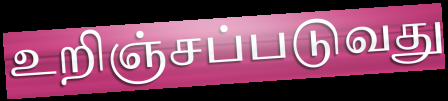
உறிஞ்சப்படுவது